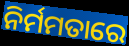
ନିର୍ମମତାରେ